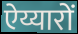
ऐय्यारों